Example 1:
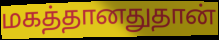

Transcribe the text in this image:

மகத்தானதுதான்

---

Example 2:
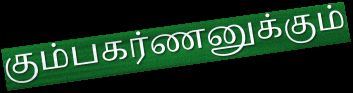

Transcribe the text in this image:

கும்பகர்ணனுக்கும்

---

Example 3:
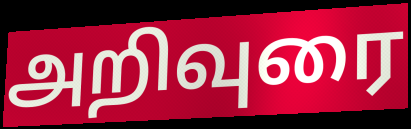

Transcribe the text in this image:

அறிவுரை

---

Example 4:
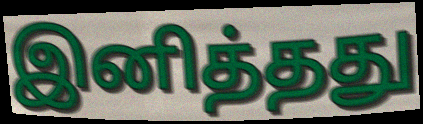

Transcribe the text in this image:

இனித்தது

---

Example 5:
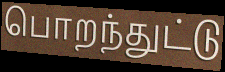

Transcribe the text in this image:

பொறந்துட்டு